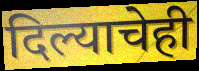
दिल्याचेही